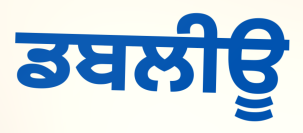
ਡਬਲੀਊ